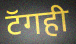
टॅगही